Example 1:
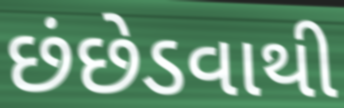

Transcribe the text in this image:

છંછેડવાથી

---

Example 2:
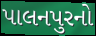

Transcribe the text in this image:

પાલનપુરનો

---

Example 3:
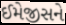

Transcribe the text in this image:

ઈમેજીસને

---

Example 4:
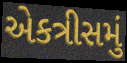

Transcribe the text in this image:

એકત્રીસમું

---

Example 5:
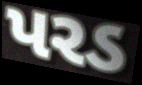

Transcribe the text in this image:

પરડ